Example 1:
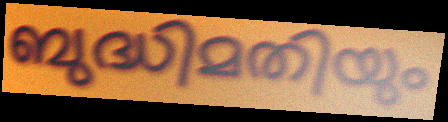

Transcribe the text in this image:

ബുദ്ധിമതിയും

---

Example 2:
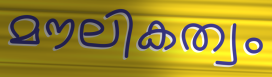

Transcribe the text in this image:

മൗലികത്വം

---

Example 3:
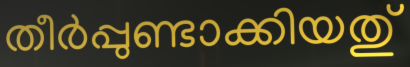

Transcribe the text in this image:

തീർപ്പുണ്ടാക്കിയതു്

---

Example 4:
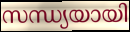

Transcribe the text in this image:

സന്ധ്യയായി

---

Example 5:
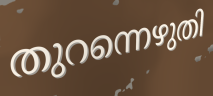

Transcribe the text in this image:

തുറന്നെഴുതി